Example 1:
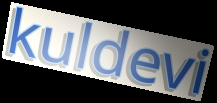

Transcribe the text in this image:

kuldevi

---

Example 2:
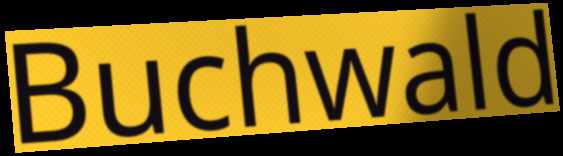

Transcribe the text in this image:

Buchwald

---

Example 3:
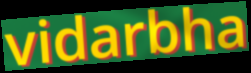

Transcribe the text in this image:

vidarbha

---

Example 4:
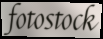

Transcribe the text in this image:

fotostock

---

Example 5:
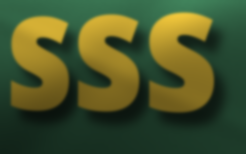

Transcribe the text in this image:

sss